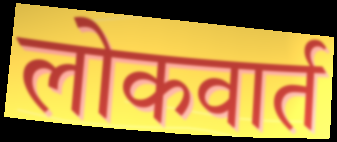
लोकवार्त